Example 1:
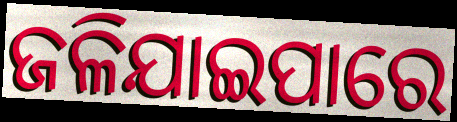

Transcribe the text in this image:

ଜଳିଯାଇପାରେ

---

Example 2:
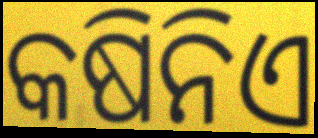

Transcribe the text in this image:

କଷିନିଏ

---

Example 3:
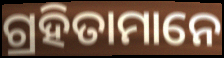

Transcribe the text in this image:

ଗ୍ରହିତାମାନେ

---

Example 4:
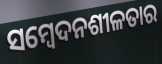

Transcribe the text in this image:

ସମ୍ୱେଦନଶୀଳତାର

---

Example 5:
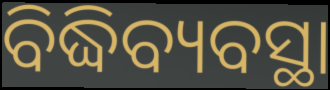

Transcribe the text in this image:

ବିଦ୍ଧିବ୍ୟବସ୍ଥା